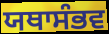
ਯਥਾਸੰਭਵ